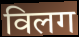
विलग